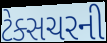
ટેક્સચરની